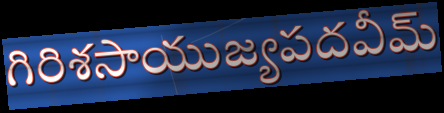
గిరిశసాయుజ్యపదవీమ్